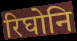
रिघोनि